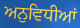
ਅਨੁਵਿਧੀਆਂ